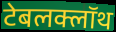
टेबलक्लॉथ